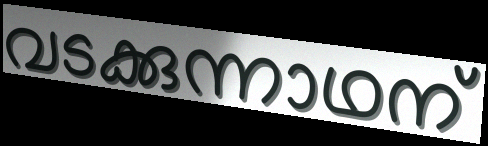
വടക്കുന്നാഥന്